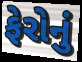
ફેરોનું